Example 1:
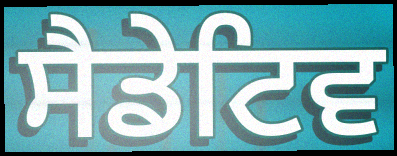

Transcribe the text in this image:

ਸੈਡੇਟਿਵ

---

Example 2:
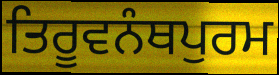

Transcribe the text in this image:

ਤਿਰੂਵਨੰਥਪੁਰਮ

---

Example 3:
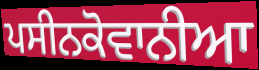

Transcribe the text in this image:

ਪਸੀਨਕੋਵਾਨੀਆ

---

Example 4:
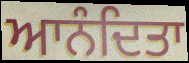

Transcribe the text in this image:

ਆਨੰਦਿਤਾ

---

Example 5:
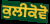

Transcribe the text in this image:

ਕੁਲੀਕੋਵੋ